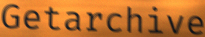
Getarchive